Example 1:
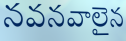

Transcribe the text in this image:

నవనవాలైన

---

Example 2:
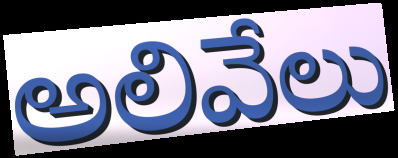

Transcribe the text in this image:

అలివేలు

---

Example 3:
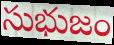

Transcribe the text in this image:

సుభుజం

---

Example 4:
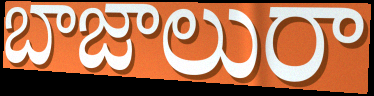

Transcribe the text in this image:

బాజాలురా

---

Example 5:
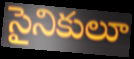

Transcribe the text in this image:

సైనికులూ